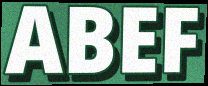
ABEF